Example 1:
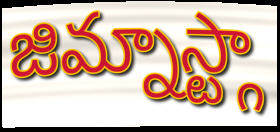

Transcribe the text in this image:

జిమ్నాస్ట్గా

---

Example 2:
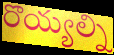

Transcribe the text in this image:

రొయ్యల్ని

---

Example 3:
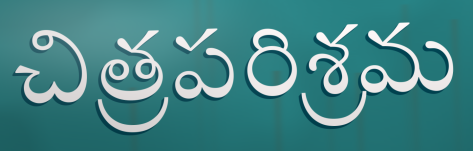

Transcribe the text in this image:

చిత్రపరిశ్రమ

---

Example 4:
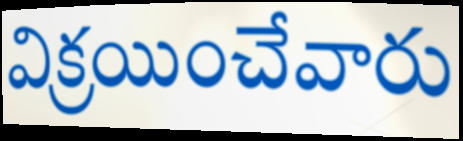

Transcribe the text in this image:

విక్రయించేవారు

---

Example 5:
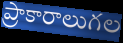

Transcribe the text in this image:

ప్రాకారాలుగల